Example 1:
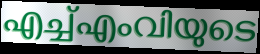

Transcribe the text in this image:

എച്ച്എംവിയുടെ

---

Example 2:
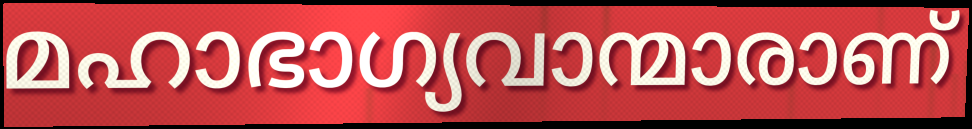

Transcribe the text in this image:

മഹാഭാഗ്യവാന്മാരാണ്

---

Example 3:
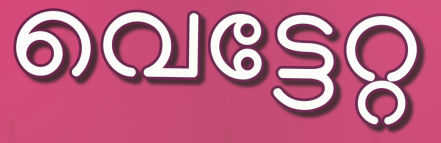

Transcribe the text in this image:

വെട്ടേറ്റ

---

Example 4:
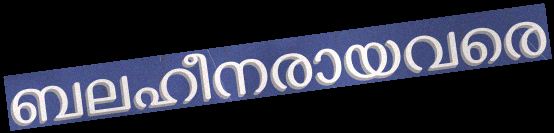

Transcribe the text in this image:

ബലഹീനരായവരെ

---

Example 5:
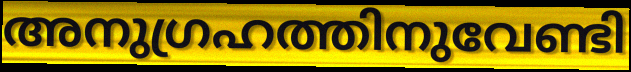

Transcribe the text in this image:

അനുഗ്രഹത്തിനുവേണ്ടി